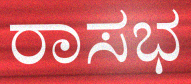
ರಾಸಭ